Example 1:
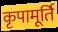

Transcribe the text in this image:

कृपामूर्ति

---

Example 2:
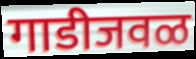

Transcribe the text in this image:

गाडीजवळ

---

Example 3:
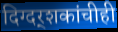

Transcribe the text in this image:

दिग्दर्शकांचीही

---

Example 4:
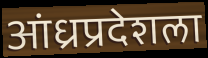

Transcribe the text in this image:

आंध्रप्रदेशला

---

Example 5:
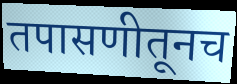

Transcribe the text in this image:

तपासणीतूनच